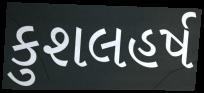
કુશલહર્ષ